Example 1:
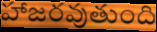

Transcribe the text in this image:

హాజరవుతుంది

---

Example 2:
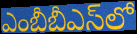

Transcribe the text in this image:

ఎంబీబీఎస్‌లో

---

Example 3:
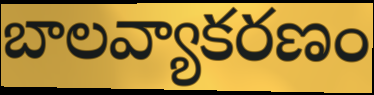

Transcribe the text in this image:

బాలవ్యాకరణం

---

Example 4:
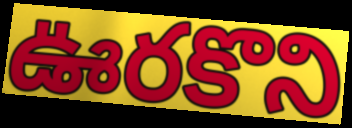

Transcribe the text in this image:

ఊరకొని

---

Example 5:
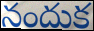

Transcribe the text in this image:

నందుక